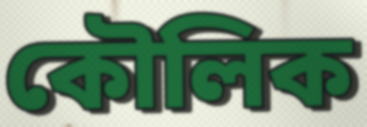
কৌলিক